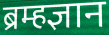
ब्रम्हज्ञान